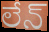
లేన్